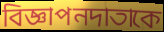
বিজ্ঞাপনদাতাকে